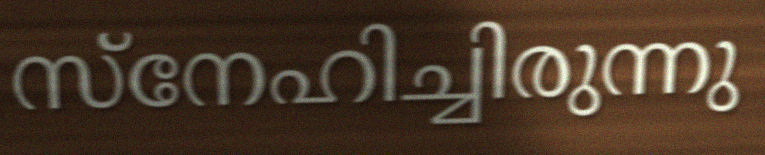
സ്നേഹിച്ചിരുന്നു